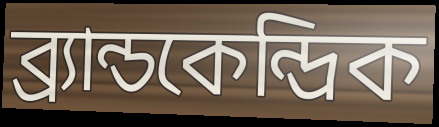
ব্র্যান্ডকেন্দ্রিক